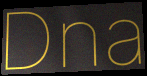
Dna